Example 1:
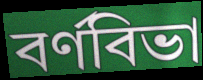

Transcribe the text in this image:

বর্ণবিভা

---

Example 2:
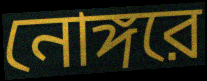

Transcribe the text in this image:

নোঙ্গরে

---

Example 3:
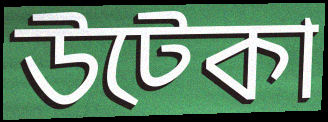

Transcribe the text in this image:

উট্কো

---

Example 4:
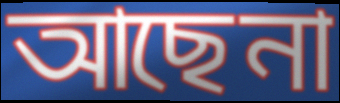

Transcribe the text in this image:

আছেনা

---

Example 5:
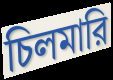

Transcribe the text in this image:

চিলমারি